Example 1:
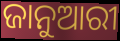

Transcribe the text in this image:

ଜାନୁଆରୀ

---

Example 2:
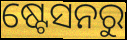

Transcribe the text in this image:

ଷ୍ଟେସନରୁ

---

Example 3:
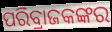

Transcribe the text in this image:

ପରିବ୍ରାଜକଙ୍କର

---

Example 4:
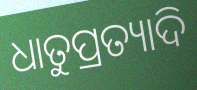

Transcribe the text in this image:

ଧାତୁପ୍ରତ୍ୟାଦି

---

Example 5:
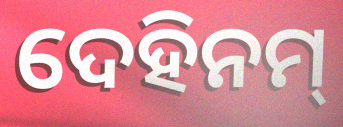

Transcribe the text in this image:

ଦେହିନମ୍